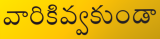
వారికివ్వకుండా